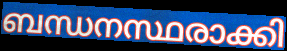
ബന്ധനസ്ഥരാക്കി